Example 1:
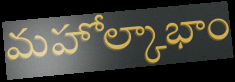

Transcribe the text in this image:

మహోల్కాభాం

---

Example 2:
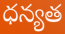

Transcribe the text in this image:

ధన్యత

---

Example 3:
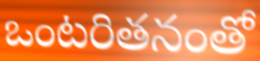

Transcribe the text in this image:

ఒంటరితనంతో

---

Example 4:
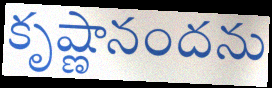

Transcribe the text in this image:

కృష్ణానందను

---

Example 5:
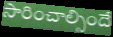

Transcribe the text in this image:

సారించాల్సిందే